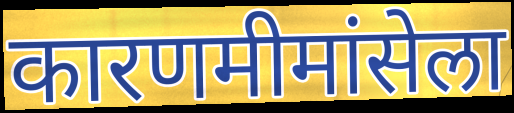
कारणमीमांसेला